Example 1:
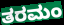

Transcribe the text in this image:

ತರಮಂ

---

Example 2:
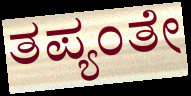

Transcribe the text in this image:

ತಪ್ಯಂತೇ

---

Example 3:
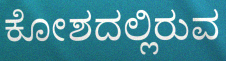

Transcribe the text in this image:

ಕೋಶದಲ್ಲಿರುವ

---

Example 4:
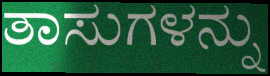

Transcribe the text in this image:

ತಾಸುಗಳನ್ನು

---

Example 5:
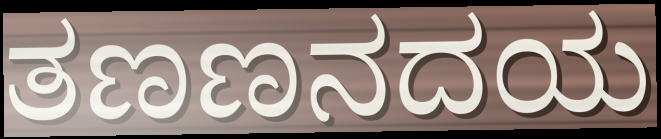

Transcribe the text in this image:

ತಣಣನದಯ